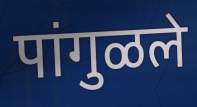
पांगुळले